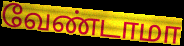
வேண்டாமா